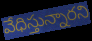
వేధిస్తున్నారని